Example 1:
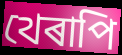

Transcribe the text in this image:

থেৰাপি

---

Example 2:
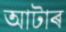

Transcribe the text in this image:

আটাৰ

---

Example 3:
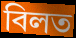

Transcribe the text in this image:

বিলত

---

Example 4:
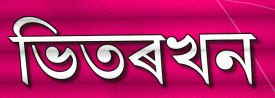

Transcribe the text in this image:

ভিতৰখন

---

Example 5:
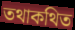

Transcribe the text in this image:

তথাকথিত